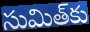
సుమిత్‌కు